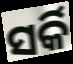
ସର୍କି